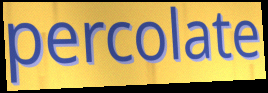
percolate